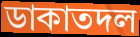
ডাকাতদল